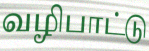
வழிபாட்டு